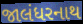
જાલંધરનાથ